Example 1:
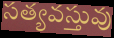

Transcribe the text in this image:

సత్యవస్తువు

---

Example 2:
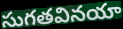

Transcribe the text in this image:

సుగతవినయా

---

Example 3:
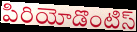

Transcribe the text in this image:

పిరియోడొంటిస్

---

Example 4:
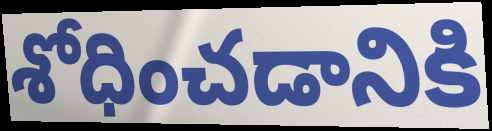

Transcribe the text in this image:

శోధించడానికి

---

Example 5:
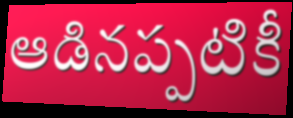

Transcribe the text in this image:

ఆడినప్పటికీ